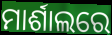
ମାର୍ଶାଲରେ